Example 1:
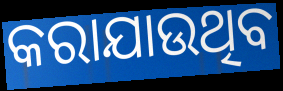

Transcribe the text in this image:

କରାଯାଉଥିବ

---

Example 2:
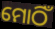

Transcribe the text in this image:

ମୋଠିଁ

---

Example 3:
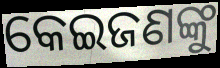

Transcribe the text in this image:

କେଇଜଣଙ୍କୁ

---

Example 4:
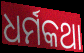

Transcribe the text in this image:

ଧର୍ମକଥା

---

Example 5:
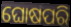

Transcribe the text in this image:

ଘୋଷପରି